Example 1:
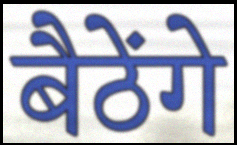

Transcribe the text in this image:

बैठेंगे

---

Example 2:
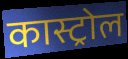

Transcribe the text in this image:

कास्ट्रोल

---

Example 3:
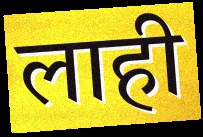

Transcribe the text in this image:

लाही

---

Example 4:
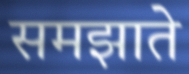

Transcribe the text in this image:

समझाते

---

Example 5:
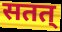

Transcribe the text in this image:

सतत्